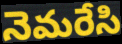
నెమరేసి